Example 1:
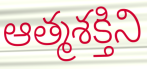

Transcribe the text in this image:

ఆత్మశక్తిని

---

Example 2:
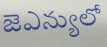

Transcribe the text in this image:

జెఎన్యులో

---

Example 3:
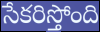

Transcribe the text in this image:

సేకరిస్తోంది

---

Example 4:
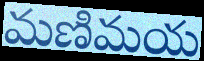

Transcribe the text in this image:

మణిమయ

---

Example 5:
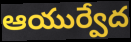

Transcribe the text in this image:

ఆయుర్వేద